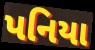
પનિયા